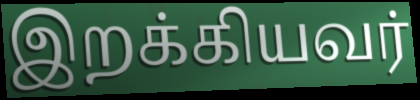
இறக்கியவர்